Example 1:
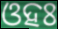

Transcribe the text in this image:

ଓହଃ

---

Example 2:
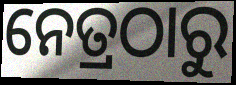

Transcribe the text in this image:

ନେତ୍ରଠାରୁ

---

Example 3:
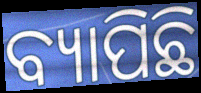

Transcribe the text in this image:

ବ୍ୟାପିଛି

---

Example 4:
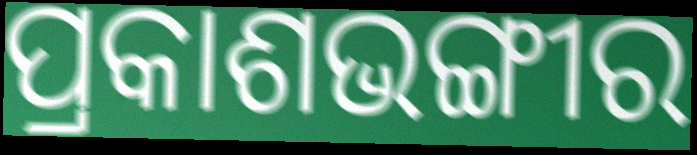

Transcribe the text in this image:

ପ୍ରକାଶଭଙ୍ଗୀର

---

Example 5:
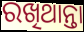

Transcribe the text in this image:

ରଖିଥାନ୍ତା